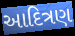
આદિત્રણ